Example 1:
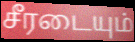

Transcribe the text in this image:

சீரடையும்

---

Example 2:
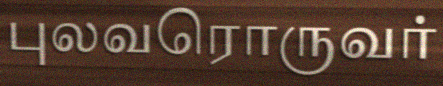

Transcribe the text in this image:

புலவரொருவர்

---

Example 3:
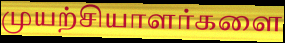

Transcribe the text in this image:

முயற்சியாளர்களை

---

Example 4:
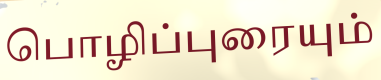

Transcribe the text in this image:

பொழிப்புரையும்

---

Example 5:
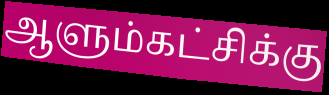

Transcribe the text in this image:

ஆளும்கட்சிக்கு